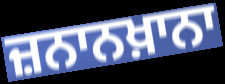
ਜ਼ਨਾਨਖ਼ਾਨਾ